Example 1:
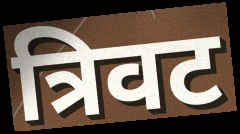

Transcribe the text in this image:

त्रिवट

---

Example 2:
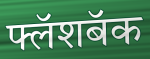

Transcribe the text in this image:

फ्लॅशबॅक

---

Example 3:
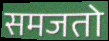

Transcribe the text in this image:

समजतो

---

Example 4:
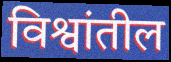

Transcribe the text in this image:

विश्वांतील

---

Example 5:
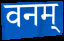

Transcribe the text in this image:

वनम्